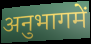
अनुभागमें